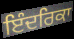
ਇੰਦਰਿਕਾ